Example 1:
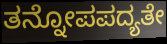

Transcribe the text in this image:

ತನ್ನೋಪಪದ್ಯತೇ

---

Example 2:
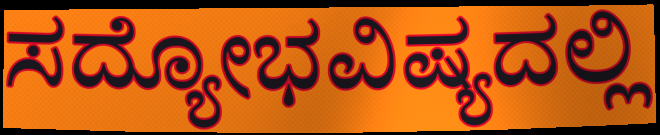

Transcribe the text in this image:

ಸದ್ಯೋಭವಿಷ್ಯದಲ್ಲಿ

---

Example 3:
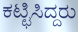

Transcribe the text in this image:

ಕಟ್ಟಿಸಿದ್ದರು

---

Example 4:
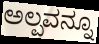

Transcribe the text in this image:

ಅಲ್ಪವನ್ನೂ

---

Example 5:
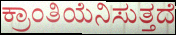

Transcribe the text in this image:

ಕ್ರಾಂತಿಯೆನಿಸುತ್ತದೆ